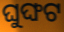
ଘୁଙ୍ଘଟ